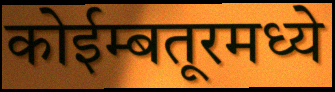
कोईम्बतूरमध्ये